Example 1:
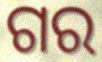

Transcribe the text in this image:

ଗର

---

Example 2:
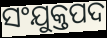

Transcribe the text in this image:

ସଂଯୁକ୍ତପଦ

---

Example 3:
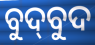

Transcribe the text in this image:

ବୁଦ୍‌ବୁଦ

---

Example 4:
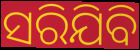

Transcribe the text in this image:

ସରିଯିବି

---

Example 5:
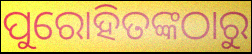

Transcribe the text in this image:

ପୁରୋହିତଙ୍କଠାରୁ